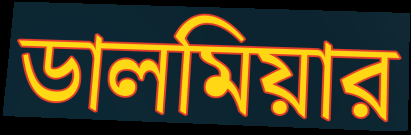
ডালমিয়ার